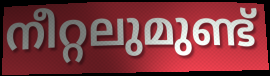
നീറ്റലുമുണ്ട്